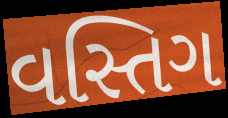
વસ્તિગ